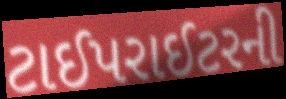
ટાઈપરાઈટરની